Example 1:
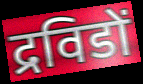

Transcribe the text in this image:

द्रविडों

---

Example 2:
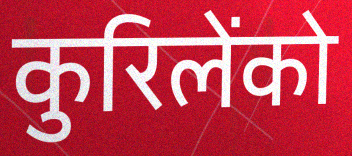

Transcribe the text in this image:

कुरिलेंको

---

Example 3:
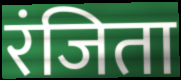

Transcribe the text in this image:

रंजिता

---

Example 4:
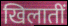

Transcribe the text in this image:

खिलातीं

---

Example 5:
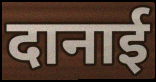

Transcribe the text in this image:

दानाई